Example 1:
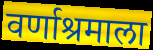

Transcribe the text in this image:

वर्णाश्रमाला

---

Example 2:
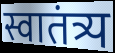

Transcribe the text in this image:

स्वातंत्र्य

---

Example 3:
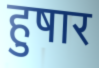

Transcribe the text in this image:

हुषार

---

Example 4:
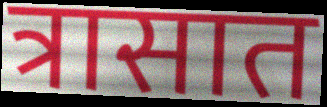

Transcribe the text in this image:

त्रासात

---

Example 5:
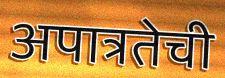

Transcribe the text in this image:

अपात्रतेची